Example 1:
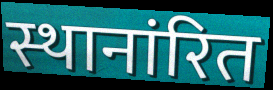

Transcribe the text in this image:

स्थानांरित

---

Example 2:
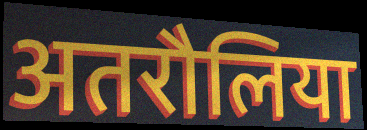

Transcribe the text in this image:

अतरौलिया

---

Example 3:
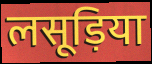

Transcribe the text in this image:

लसूड़िया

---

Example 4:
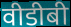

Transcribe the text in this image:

वीडीबी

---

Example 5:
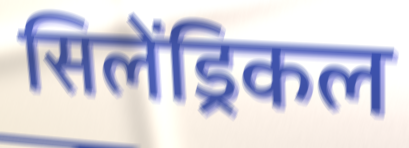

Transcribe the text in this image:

सिलेंड्रिकल